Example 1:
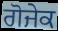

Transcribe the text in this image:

ਗੋਜੇਕ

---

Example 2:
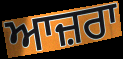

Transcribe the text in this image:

ਆਜ਼ਰਾ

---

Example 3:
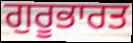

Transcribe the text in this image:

ਗੁਰੂਭਾਰਤ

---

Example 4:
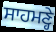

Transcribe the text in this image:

ਸਾਹਮਣ੍ਹੇ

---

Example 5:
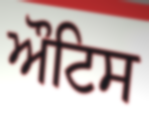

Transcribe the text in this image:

ਔਟਿਸ